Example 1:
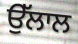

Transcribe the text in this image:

ਉੱਲਾਲ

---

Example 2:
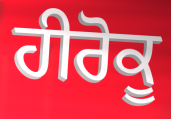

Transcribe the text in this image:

ਹੀਰੋਕੂ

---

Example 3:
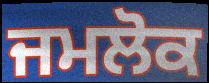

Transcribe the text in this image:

ਜਮਲੋਕ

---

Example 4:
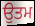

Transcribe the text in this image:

ਉਤਮ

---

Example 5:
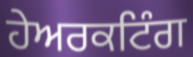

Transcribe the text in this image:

ਹੇਅਰਕਟਿੰਗ